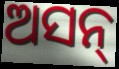
ଅସନ୍